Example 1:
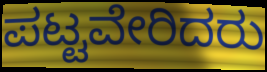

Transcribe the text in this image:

ಪಟ್ಟವೇರಿದರು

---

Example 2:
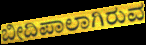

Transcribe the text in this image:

ಬೀದಿಪಾಲಾಗಿರುವ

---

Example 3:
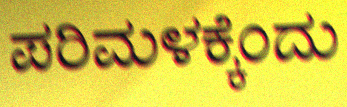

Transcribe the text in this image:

ಪರಿಮಳಕ್ಕೆಂದು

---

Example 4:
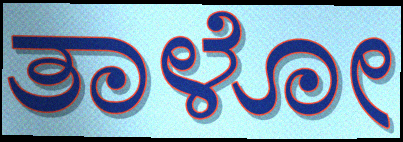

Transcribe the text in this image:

ತಾಳೋ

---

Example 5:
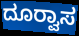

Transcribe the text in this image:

ದೂರ‍್ವಾಸ